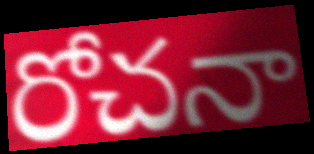
రోచనా